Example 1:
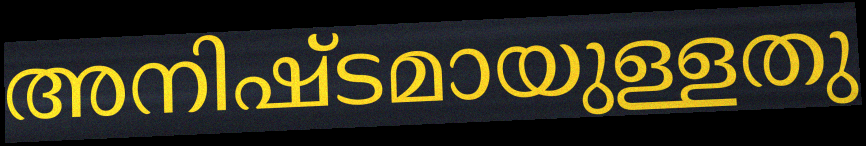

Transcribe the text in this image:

അനിഷ്ടമായുള്ളതു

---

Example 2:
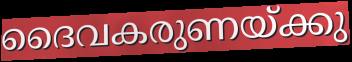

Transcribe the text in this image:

ദൈവകരുണയ്ക്കു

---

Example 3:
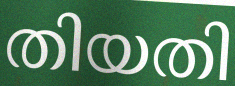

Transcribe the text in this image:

തിയതി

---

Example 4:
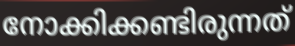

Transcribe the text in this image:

നോക്കിക്കണ്ടിരുന്നത്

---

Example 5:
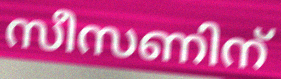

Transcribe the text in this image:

സീസണിന്